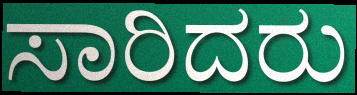
ಸಾರಿದರು